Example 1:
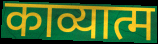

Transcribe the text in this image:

काव्यात्म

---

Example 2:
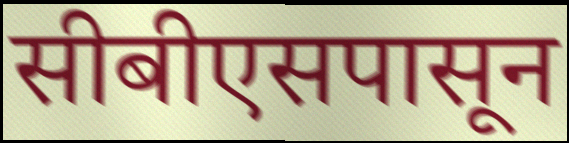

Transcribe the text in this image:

सीबीएसपासून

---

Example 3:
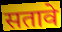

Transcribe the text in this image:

सतावे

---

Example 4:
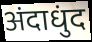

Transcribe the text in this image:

अंदाधुंद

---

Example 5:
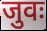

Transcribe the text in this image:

जुवः